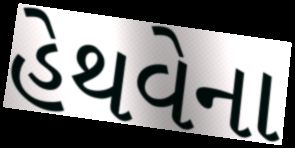
હેથવેના